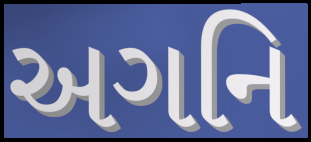
અગનિ